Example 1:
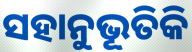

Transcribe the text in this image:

ସହାନୁଭୂତିକି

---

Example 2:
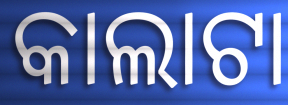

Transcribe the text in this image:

କାଲାଟା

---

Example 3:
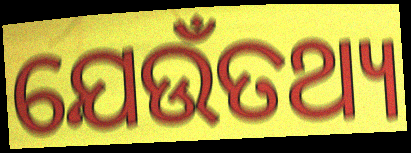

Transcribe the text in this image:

ଯେଉଁତଥ୍ୟ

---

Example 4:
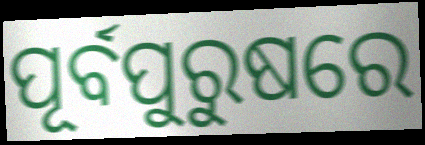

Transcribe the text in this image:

ପୂର୍ବପୁରୁଷରେ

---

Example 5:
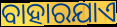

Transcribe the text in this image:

ବାହାରଯାଏ